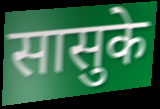
सासुके